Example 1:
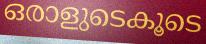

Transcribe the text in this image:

ഒരാളുടെകൂടെ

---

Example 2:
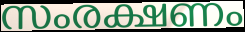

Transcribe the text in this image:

സംരക്ഷണം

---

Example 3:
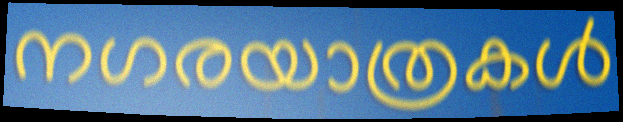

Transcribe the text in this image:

നഗരയാത്രകൾ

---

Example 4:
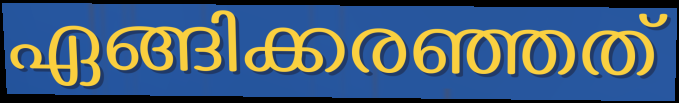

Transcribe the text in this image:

ഏങ്ങിക്കരഞ്ഞത്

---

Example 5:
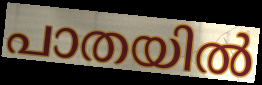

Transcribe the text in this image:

പാതയിൽ